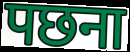
पछना